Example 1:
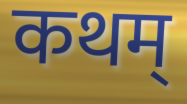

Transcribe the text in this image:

कथम्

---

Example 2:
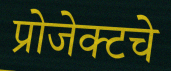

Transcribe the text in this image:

प्रोजेक्टचे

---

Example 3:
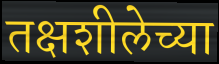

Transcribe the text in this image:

तक्षशीलेच्या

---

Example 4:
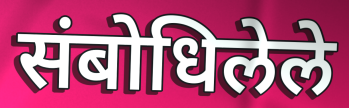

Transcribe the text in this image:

संबोधिलेले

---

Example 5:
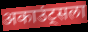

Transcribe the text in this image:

अकाउंट्सला